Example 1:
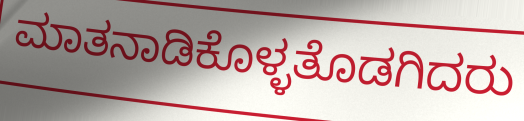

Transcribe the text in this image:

ಮಾತನಾಡಿಕೊಳ್ಳತೊಡಗಿದರು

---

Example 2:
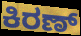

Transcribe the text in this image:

ಕಿರಣ್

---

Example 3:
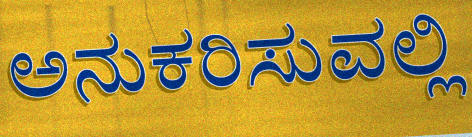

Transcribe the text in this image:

ಅನುಕರಿಸುವಲ್ಲಿ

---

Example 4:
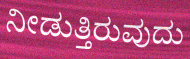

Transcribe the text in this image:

ನೀಡುತ್ತಿರುವುದು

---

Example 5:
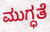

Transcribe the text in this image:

ಮುಗ್ಧತೆ